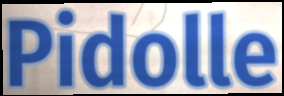
Pidolle